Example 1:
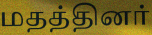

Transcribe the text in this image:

மதத்தினர்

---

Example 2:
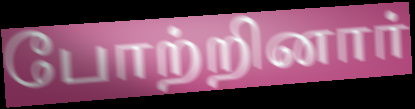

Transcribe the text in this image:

போற்றினார்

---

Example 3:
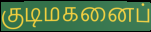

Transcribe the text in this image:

குடிமகனைப்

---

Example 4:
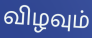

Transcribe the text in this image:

விழவும்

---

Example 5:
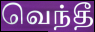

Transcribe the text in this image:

வெந்தீ